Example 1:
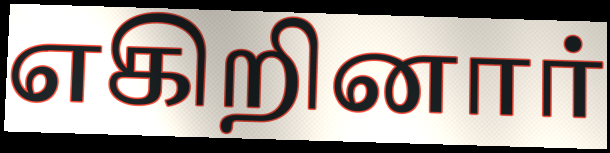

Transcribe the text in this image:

எகிறினார்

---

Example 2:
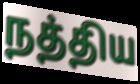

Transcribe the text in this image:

நத்திய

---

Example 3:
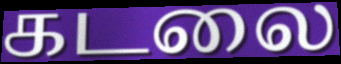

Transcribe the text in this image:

கடலை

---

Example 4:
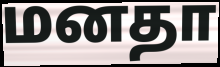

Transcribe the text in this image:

மனதா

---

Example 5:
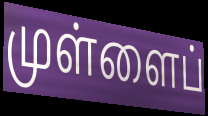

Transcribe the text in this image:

முள்ளைப்